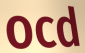
ocd